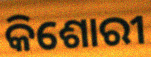
କିଶୋରୀ